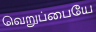
வெறுப்பையே